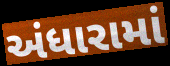
અંધારામાં